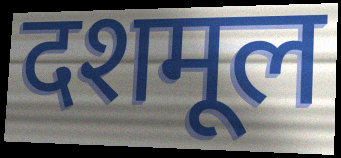
दशमूल